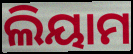
ଲିୟାମ